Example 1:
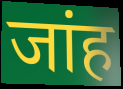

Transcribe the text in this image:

जांह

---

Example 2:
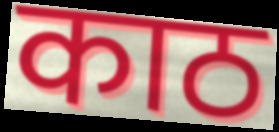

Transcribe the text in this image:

काठ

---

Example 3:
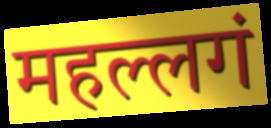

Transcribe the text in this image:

महल्लगं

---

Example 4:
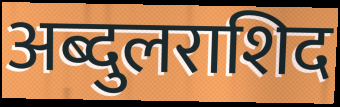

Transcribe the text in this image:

अब्दुलराशिद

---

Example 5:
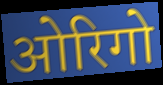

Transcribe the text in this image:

ओरिगो